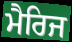
ਮੈਰਿਜ